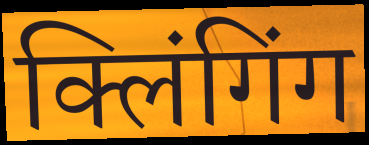
क्लिंगिंग